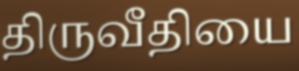
திருவீதியை